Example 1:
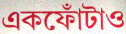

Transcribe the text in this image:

একফোঁটাও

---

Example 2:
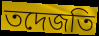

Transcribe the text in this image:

তদেজতি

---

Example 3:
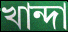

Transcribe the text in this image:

খান্দা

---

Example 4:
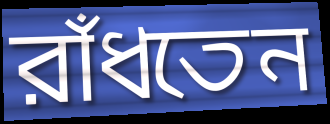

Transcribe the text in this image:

রাঁধতেন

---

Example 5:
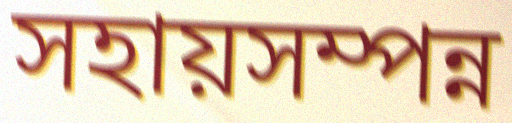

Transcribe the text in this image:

সহায়সম্পন্ন